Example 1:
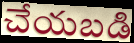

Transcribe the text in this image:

చేయబడి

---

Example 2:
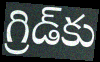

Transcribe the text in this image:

గ్రిడ్‌కు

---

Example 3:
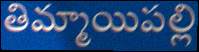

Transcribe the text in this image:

తిమ్మాయిపల్లి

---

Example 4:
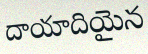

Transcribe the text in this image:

దాయాదియైన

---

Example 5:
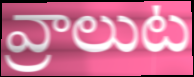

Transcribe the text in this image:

వ్రాలుట